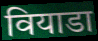
वियाडा